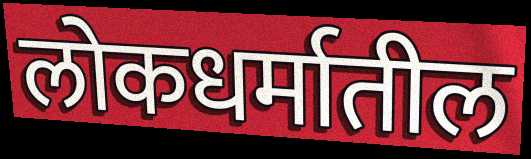
लोकधर्मातील